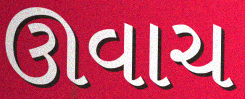
ઊવાચ